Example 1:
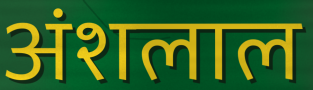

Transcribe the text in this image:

अंशलाल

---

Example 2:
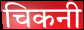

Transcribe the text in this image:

चिकनी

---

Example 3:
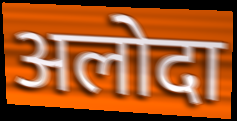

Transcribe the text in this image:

अलोदा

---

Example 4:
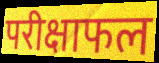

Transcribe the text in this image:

परीक्षाफल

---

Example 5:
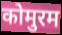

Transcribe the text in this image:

कोमुरम